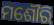
ମଶୌରି